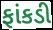
ફાંકડી